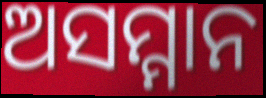
ଅସମ୍ମାନ